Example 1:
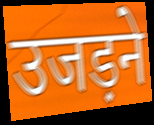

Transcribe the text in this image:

उजड़ने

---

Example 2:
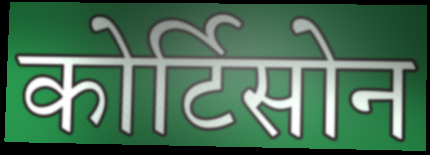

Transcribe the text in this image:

कोर्टिसोन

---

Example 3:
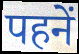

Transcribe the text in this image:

पहनें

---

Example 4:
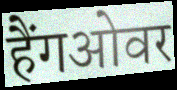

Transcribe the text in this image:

हैंगओवर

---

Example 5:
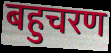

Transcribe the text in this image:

बहुचरण